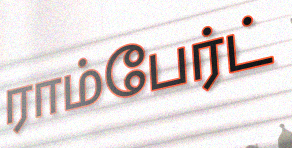
ராம்பேர்ட்